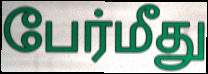
பேர்மீது